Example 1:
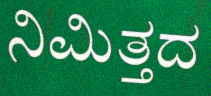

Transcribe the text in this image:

ನಿಮಿತ್ತದ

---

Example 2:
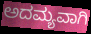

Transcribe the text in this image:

ಅದಮ್ಯವಾಗಿ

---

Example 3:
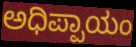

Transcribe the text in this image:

ಅಧಿಪ್ಪಾಯಂ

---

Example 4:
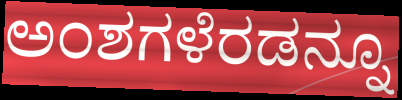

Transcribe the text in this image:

ಅಂಶಗಳೆರಡನ್ನೂ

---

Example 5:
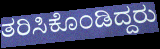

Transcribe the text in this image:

ತರಿಸಿಕೊಂಡಿದ್ದರು